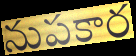
నుపకార